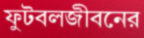
ফুটবলজীবনের